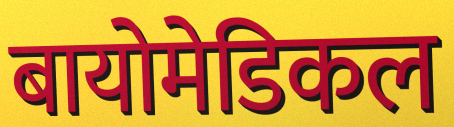
बायोमेडिकल